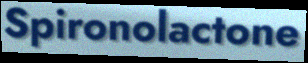
Spironolactone